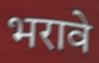
भरावे